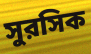
সুরসিক